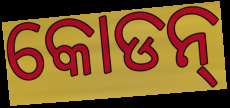
କୋଡନ୍